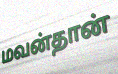
மவன்தான்